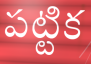
పట్టిక